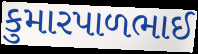
કુમારપાળભાઈ